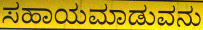
ಸಹಾಯಮಾಡುವನು